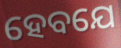
ହେବଯେ